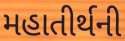
મહાતીર્થની